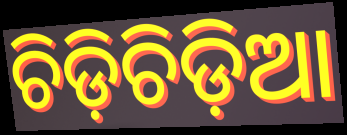
ଚିଡ଼ିଚିଡ଼ିଆ